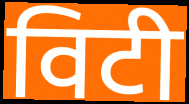
विटी